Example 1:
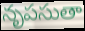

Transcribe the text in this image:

నృపసుతా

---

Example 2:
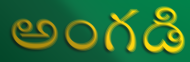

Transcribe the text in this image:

అంగడి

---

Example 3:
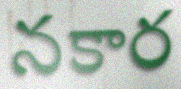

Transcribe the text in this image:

నకార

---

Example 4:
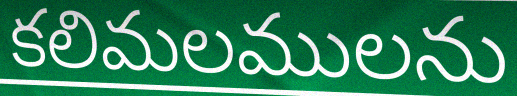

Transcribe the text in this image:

కలిమలములను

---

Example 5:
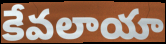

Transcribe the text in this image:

కేవలాయా